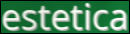
estetica